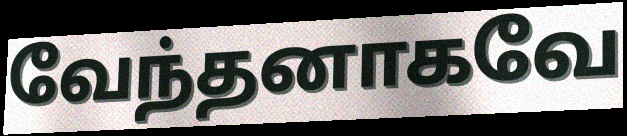
வேந்தனாகவே